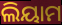
ଲିୟାମ